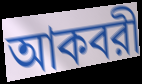
আকবরী